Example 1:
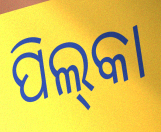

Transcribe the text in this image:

ପିଲ୍‌କା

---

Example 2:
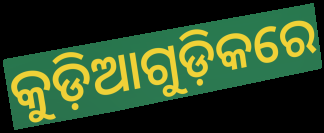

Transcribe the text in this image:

କୁଡ଼ିଆଗୁଡ଼ିକରେ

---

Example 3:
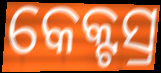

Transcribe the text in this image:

କେକ୍ଟସ୍ର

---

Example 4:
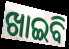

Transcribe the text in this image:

ଖାଇବି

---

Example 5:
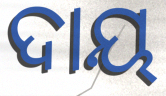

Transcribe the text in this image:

ଦାୟ